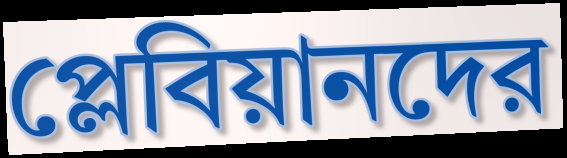
প্লেবিয়ানদের